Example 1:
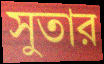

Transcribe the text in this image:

সুতার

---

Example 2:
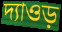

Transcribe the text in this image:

দ্যাওড়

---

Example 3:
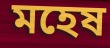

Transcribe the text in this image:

মহেষ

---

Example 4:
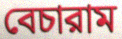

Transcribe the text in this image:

বেচারাম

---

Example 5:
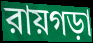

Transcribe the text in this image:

রায়গড়া